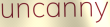
uncanny